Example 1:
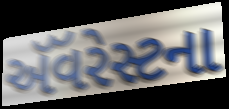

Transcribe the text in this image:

ઍૅવરેસ્ટના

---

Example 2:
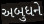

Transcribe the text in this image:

અબુધને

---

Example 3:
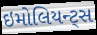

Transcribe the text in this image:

ઇમોલિયન્ટ્સ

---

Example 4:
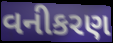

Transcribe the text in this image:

વનીકરણ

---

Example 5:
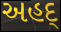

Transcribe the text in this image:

અહદ્